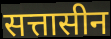
सत्तासीन